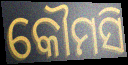
କୌମସି